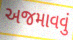
અજમાવવું